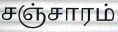
சஞ்சாரம்